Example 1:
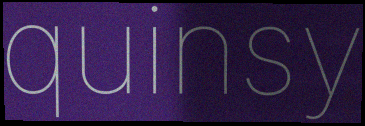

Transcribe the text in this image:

quinsy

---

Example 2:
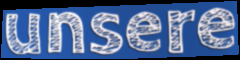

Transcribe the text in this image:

unsere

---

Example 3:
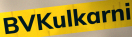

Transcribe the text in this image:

BVKulkarni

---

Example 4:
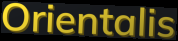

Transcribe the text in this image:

Orientalis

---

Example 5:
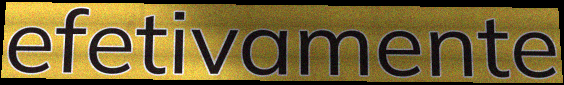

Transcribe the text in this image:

efetivamente